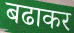
बढाकर